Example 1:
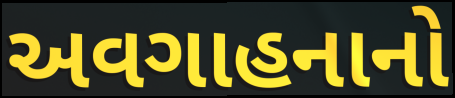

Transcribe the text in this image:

અવગાહનાનો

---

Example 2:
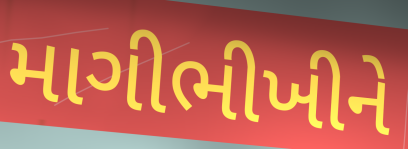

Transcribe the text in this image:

માગીભીખીને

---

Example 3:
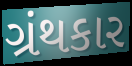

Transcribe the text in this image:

ગ્રંથકાર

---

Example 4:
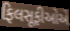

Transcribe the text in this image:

ફિલસૂફીઓએ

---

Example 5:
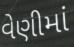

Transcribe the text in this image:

વેણીમાં